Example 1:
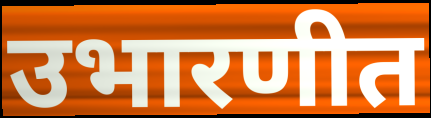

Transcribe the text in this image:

उभारणीत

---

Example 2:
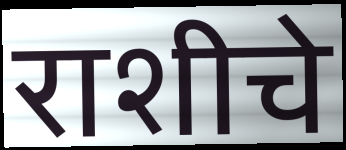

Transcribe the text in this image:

राशीचे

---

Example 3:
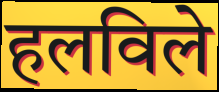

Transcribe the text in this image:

हलविले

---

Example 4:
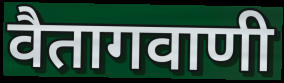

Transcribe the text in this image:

वैतागवाणी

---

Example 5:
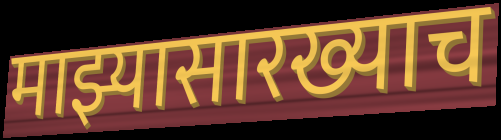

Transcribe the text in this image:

माझ्यासारख्याच